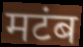
मटंब